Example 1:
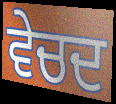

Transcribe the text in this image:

ਵੇਚਦ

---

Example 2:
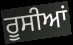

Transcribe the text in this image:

ਰੂਸੀਆਂ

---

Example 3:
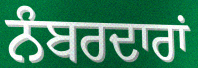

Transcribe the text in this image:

ਨੰਬਰਦਾਰਾਂ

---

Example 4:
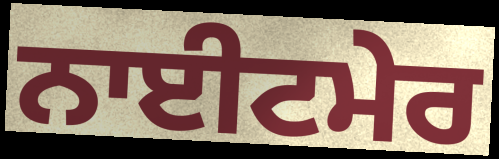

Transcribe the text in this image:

ਨਾਈਟਮੇਰ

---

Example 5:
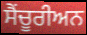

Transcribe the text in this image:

ਸੈਂਚੂਰੀਅਨ